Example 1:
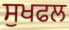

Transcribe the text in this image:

ਸੁਖਫਲ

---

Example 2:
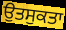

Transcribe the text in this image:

ਉਤਸੁਕਤਾ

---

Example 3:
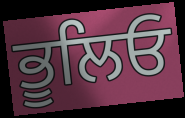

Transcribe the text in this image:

ਭੂਲਿਓ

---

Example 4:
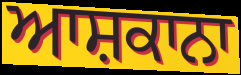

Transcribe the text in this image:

ਆਸ਼ਕਾਨਾ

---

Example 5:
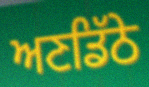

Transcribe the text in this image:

ਅਣਡਿੱਠੇ